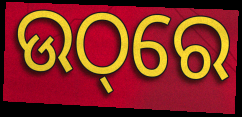
ଉଠ୍‌ରେ